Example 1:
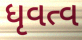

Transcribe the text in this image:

ધૃવત્વ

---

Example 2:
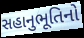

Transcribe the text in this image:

સહાનુભૂતિનો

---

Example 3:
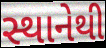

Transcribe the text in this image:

સ્થાનેથી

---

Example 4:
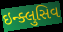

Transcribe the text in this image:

ઇન્ક્લુસિવ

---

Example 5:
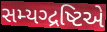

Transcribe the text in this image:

સમ્યગ્દ્રષ્ટિએ